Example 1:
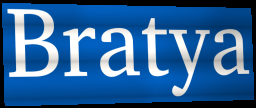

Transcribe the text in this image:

Bratya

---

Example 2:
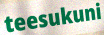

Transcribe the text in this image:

teesukuni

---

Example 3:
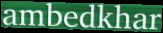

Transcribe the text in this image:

ambedkhar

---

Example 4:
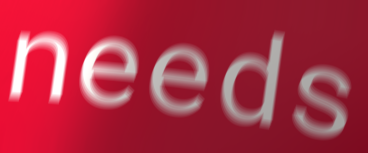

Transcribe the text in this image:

needs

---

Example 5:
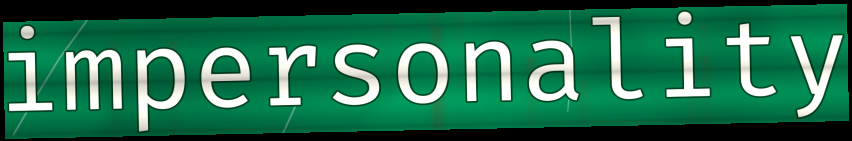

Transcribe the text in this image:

impersonality